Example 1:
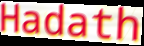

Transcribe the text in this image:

Hadath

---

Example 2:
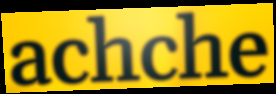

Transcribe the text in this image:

achche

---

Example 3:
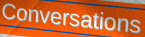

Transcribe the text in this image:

Conversations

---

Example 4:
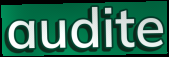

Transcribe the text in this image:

audite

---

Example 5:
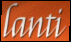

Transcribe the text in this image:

lanti